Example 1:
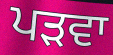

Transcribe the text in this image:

ਪੜਵਾ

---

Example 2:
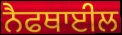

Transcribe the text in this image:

ਨੈਫਥਾਈਲ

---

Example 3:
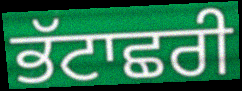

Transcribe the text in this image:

ਭੱਟਾਛਰੀ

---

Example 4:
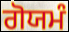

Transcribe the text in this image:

ਗੋਯਮੰ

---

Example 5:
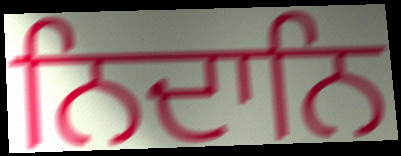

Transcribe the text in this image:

ਨਿਦਾਨਿ